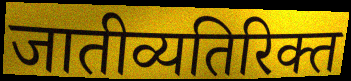
जातीव्यतिरिक्त